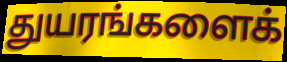
துயரங்களைக்